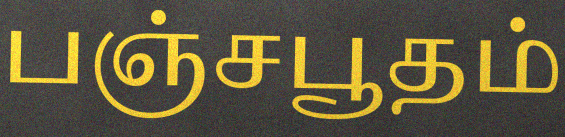
பஞ்சபூதம்